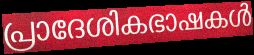
പ്രാദേശികഭാഷകൾ